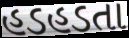
હડહડતા